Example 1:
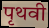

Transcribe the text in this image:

पृथवी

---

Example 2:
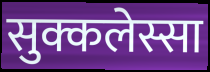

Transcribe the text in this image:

सुक्कलेस्सा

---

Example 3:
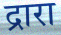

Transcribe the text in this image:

द्रारा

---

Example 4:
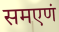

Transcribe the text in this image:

समएणं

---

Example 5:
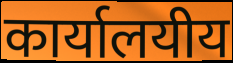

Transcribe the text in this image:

कार्यालयीय